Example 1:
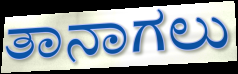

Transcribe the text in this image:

ತಾನಾಗಲು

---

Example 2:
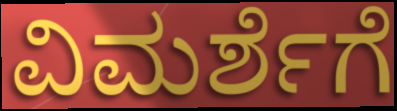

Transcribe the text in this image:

ವಿಮರ್ಶೆಗೆ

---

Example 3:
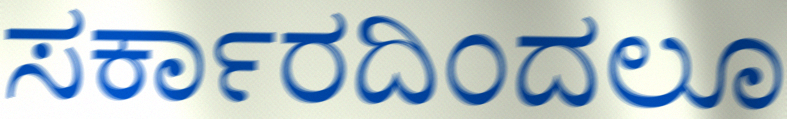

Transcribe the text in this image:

ಸರ್ಕಾರದಿಂದಲೂ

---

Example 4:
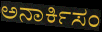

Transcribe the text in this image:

ಅನಾರ್ಕಿಸಂ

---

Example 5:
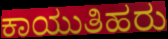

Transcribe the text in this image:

ಕಾಯುತಿಹರು